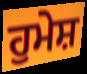
ਹੁਮੇਸ਼